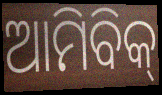
ଆମିବିକ୍